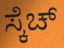
ಸ್ಕೆಚ್